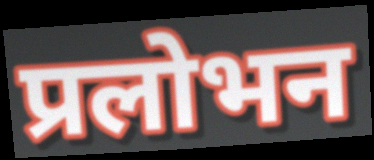
प्रलोभन